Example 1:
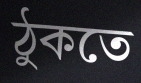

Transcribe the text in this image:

ঠুকতে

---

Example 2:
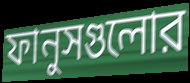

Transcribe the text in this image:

ফানুসগুলোর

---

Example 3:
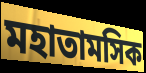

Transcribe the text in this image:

মহাতামসিক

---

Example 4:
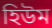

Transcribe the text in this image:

হিউম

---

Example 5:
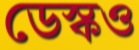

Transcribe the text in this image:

ডেস্কও